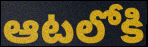
ఆటలోకి